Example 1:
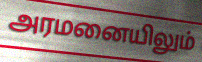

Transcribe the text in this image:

அரமனையிலும்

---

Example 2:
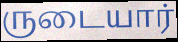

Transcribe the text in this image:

ருடையார்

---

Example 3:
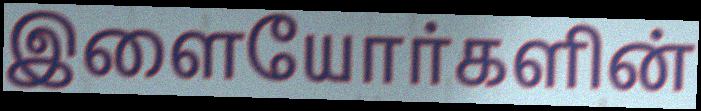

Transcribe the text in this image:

இளையோர்களின்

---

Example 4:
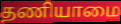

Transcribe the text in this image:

தணியாமை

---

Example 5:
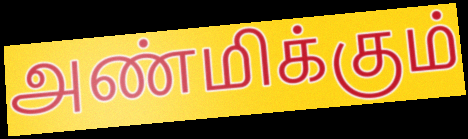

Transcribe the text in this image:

அண்மிக்கும்